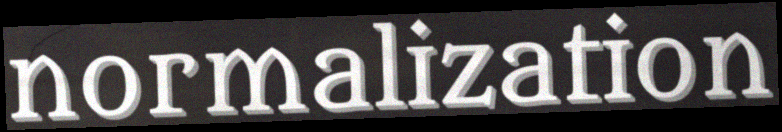
normalization